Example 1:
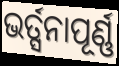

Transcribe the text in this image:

ଭର୍ତ୍ସନାପୂର୍ଣ୍ଣ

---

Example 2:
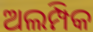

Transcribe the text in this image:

ଅଲମ୍ପିକ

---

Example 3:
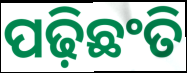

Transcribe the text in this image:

ପଢ଼ିଛଂତି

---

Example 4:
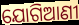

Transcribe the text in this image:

ଯୋଗିଆଣୀ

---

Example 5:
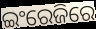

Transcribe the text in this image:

ଇଂରେଜିରେ